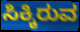
ಸಿಕ್ಕಿರುವ